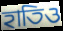
হাতিও